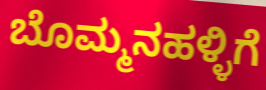
ಬೊಮ್ಮನಹಳ್ಳಿಗೆ